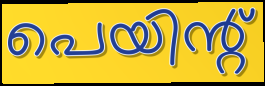
പെയിന്റ്